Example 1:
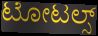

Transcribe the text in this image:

ಟೋಟಲ್ಸ್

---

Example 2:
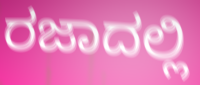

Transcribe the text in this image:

ರಜಾದಲ್ಲಿ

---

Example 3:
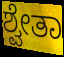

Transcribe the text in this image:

ಶ್ವೇತಾ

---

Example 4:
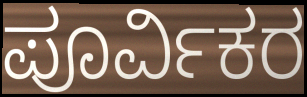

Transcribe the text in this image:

ಪೂರ್ವಿಕರ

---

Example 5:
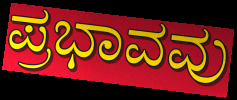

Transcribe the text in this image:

ಪ್ರಭಾವವು